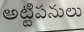
అట్టిపనులు